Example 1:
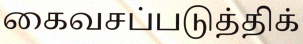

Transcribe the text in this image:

கைவசப்படுத்திக்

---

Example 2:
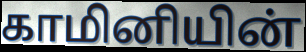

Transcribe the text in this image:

காமினியின்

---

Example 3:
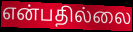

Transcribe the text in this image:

என்பதில்லை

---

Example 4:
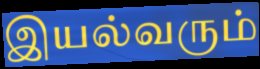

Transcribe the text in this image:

இயல்வரும்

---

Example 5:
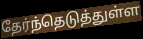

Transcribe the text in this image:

தேர்ந்தெடுத்துள்ள